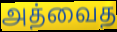
அத்வைத